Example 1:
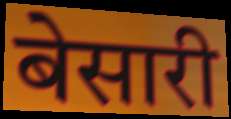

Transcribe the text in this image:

बेसारी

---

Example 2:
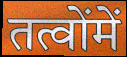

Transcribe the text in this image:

तत्वोंमें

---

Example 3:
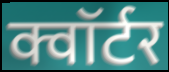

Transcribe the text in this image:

क्वॉर्टर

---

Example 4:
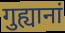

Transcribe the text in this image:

गुह्यानां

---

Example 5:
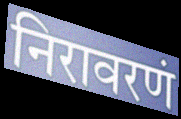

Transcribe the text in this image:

निरावरणं